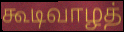
கூடிவாழத்